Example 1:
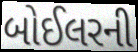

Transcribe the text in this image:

બોઈલરની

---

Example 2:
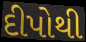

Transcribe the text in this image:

દીપોથી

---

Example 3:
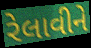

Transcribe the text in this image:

રેલાવીને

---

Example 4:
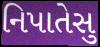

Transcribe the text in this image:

નિપાતેસુ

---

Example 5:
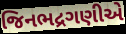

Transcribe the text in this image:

જિનભદ્રગણીએ